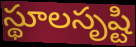
స్థూలసృష్టి